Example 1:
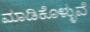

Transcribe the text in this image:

ಮಾಡಿಕೊಳ್ಳುವೆ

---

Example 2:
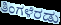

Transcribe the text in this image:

ತಿಂಗಳೆರಡು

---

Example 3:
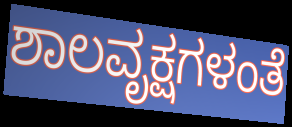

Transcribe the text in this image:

ಶಾಲವೃಕ್ಷಗಳಂತೆ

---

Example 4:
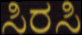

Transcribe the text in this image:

ಸಿರಸಿ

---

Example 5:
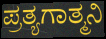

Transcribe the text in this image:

ಪ್ರತ್ಯಗಾತ್ಮನಿ